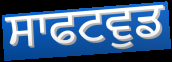
ਸਾਫਟਵੁਡ